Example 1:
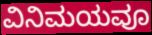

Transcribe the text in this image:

ವಿನಿಮಯವೂ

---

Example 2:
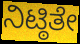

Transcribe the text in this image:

ನಿಟ್ಠಿತೇ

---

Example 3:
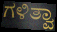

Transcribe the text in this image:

ಗಳಿತ್ವಾ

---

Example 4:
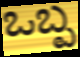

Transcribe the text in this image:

ಒಬ್ಪ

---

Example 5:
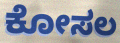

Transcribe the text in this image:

ಕೋಸಲ